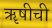
ॠषीची